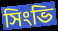
সিংভি